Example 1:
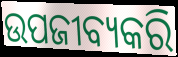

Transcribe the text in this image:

ଉପଜୀବ୍ୟକରି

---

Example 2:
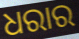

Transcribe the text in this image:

ଧରାର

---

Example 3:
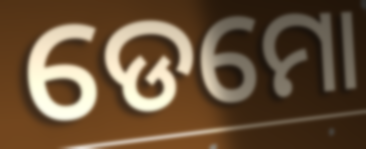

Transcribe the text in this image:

ଡେମୋ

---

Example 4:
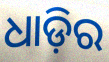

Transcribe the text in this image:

ଧାଡ଼ିର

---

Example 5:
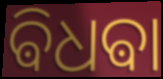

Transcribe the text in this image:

ଵିଧଵା